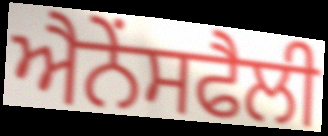
ਐਨੇਂਸਫੈਲੀ